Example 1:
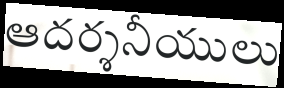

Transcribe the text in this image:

ఆదర్శనీయులు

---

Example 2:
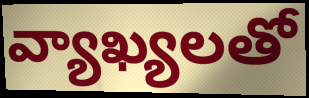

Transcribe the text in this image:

వ్యాఖ్యలతో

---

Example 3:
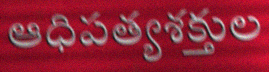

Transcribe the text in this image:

ఆధిపత్యశక్తుల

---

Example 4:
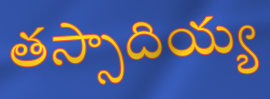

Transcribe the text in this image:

తస్సాదియ్య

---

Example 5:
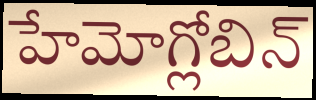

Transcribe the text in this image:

హేమోగ్లోబిన్